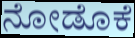
ನೋಡೊಕೆ